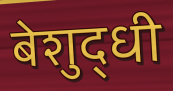
बेशुद्धी